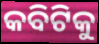
କବିଟିକୁ